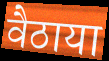
वैठाया